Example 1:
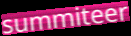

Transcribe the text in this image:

summiteer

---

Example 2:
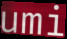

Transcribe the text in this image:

umi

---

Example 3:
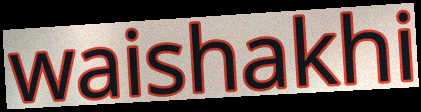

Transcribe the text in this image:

waishakhi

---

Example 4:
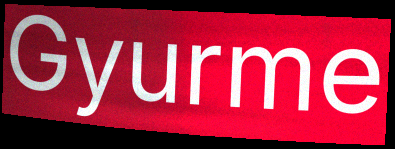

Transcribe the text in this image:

Gyurme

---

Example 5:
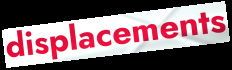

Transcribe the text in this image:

displacements